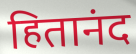
हितानंद